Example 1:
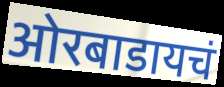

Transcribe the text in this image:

ओरबाडायचं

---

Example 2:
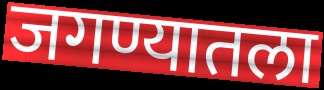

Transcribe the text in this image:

जगण्यातला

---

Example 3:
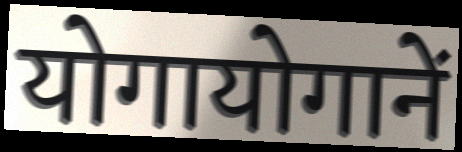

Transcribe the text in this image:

योगायोगानें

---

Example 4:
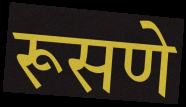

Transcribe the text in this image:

रूसणे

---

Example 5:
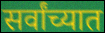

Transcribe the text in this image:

सर्वांच्यात